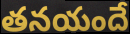
తనయందే